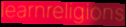
learnreligions